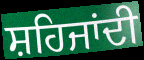
ਸ਼ਹਿਜਾਂਦੀ